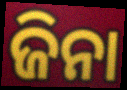
ଜିନା